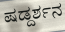
ಷಡ್ದರ್ಶನ